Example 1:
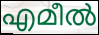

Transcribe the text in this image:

എമീൽ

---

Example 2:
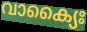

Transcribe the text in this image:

വാക്യൈഃ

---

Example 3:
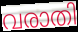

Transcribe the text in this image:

വരാതി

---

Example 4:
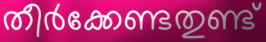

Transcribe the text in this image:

തീർക്കേണ്ടതുണ്ട്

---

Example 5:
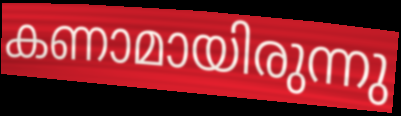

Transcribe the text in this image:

കണാമായിരുന്നു